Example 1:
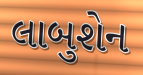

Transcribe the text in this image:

લાબુશેન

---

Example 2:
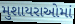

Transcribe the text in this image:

મુશાયરાઓમાં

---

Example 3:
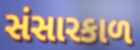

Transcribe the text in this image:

સંસારકાળ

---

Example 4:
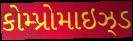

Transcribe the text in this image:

કોમ્પ્રોમાઇઝ્ડ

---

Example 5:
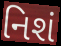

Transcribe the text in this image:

નિશં